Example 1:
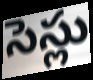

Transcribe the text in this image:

సెస్లు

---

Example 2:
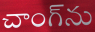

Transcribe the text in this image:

చాంగ్‌ను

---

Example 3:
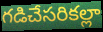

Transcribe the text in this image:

గడిచేసరికల్లా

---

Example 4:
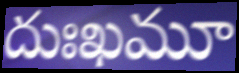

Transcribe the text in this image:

దుఃఖమూ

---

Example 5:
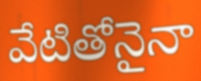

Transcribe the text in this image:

వేటితోనైనా